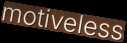
motiveless